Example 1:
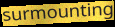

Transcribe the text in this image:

surmounting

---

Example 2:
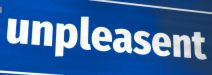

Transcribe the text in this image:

unpleasent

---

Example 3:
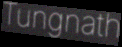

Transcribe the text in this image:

Tungnath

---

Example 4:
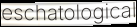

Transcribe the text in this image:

eschatological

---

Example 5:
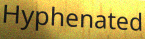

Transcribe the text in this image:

Hyphenated